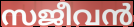
സജീവൻ